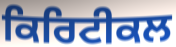
ਕਿਰਿਟੀਕਲ